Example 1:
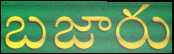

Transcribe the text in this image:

బజారు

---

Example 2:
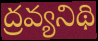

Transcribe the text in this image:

ద్రవ్యనిథి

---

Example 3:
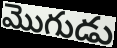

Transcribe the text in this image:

మొగుడు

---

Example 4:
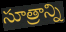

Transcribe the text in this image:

సూత్రాన్ని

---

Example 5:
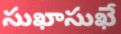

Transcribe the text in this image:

సుఖాసుఖే